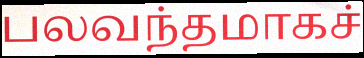
பலவந்தமாகச்